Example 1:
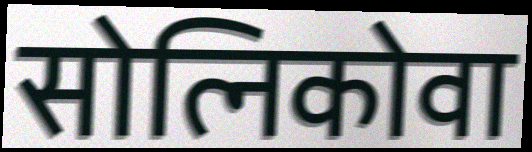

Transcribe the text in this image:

सोत्निकोवा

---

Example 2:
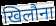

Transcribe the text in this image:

खिलौना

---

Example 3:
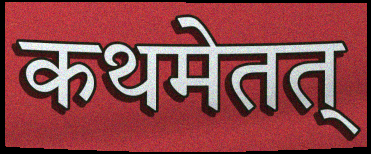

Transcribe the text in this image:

कथमेतत्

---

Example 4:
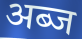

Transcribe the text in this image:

अब्ज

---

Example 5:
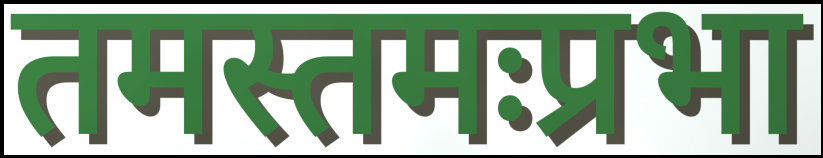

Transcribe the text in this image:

तमस्तमःप्रभा